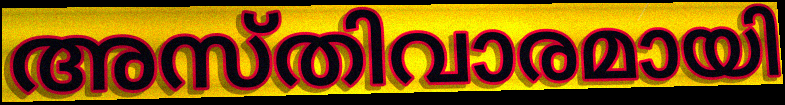
അസ്തിവാരമായി